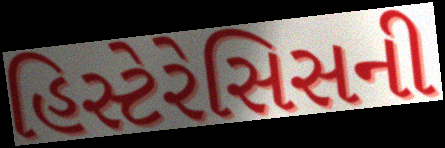
હિસ્ટેરેસિસની